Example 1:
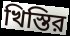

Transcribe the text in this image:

খিস্তির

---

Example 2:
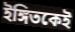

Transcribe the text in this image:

ইঙ্গিতকেই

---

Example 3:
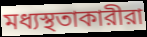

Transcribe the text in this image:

মধ্যস্থতাকারীরা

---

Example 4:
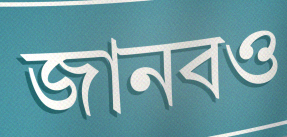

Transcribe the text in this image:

জানবও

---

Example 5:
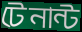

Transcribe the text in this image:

টেনান্ট